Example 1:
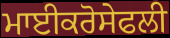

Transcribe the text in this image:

ਮਾਈਕਰੋਸੇਫਲੀ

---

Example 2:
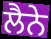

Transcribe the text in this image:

ਲੈਨੇ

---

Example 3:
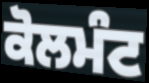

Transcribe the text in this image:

ਕੋਲਮੰਟ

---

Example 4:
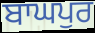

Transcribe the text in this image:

ਬਾਘਪੁਰ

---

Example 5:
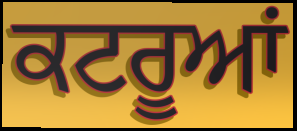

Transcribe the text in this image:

ਕਟਰੂਆਂ